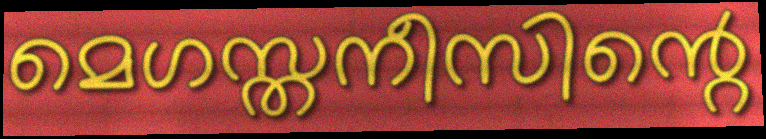
മെഗസ്തനീസിന്റെ